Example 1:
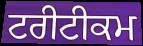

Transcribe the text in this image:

ਟਰੀਟੀਕਮ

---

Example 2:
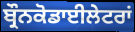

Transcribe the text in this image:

ਬ੍ਰੌਨਕੋਡਾਈਲੇਟਰਾਂ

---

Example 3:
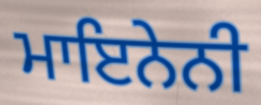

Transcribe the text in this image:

ਮਾਇਨੇਨੀ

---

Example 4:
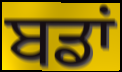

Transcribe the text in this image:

ਬਡਾਂ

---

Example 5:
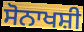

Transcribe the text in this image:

ਸੋਨਾਖਸ਼ੀ